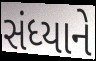
સંધ્યાને